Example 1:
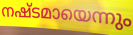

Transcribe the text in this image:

നഷ്ടമായെന്നും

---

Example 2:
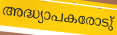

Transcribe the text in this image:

അദ്ധ്യാപകരോടു്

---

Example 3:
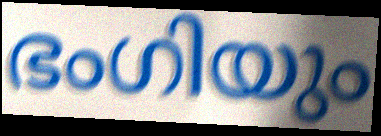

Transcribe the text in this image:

ഭംഗിയും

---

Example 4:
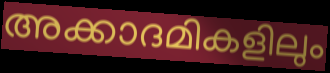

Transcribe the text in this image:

അക്കാദമികളിലും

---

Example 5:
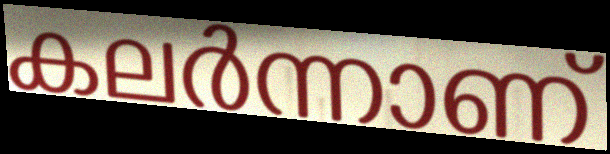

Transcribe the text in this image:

കലർന്നാണ്